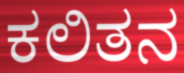
ಕಲಿತನ